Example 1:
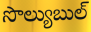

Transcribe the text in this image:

సొల్యుబుల్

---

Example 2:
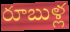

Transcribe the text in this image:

రూబుళ్ల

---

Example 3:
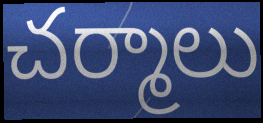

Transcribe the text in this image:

చర్మాలు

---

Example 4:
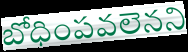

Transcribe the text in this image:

బోధింపవలెనని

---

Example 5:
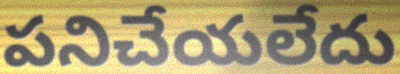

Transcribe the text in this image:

పనిచేయలేదు